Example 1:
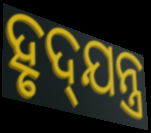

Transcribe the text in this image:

ହୃଦ୍‌ଯନ୍ତ୍ର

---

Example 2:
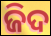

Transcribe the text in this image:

ଜିଦ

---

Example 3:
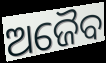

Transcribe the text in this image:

ଅଜୈବ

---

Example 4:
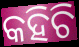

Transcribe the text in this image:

କହିଚି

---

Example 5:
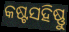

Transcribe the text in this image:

କଷ୍ଟସହିଷ୍ଣୁ